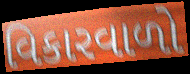
વિકારવાળો